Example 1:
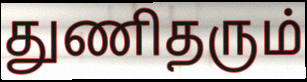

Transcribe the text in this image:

துணிதரும்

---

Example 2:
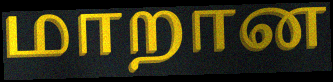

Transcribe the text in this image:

மாறான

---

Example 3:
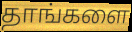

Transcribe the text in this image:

தாங்களை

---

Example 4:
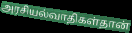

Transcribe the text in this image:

அரசியல்வாதிகள்தான்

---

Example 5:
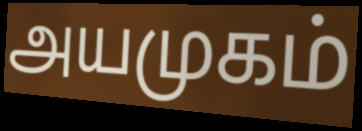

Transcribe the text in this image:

அயமுகம்